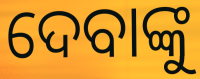
ଦେବାଙ୍କୁ